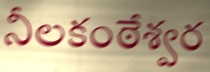
నీలకంఠేశ్వర